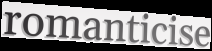
romanticise